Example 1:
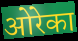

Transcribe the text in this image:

ओरेका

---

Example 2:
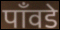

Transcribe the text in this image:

पाँवडे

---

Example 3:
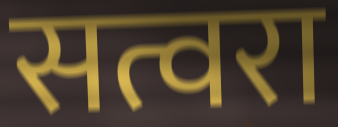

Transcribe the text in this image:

सत्वरा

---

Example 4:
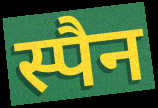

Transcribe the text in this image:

स्पैन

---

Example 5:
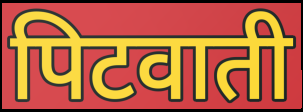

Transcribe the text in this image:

पिटवाती